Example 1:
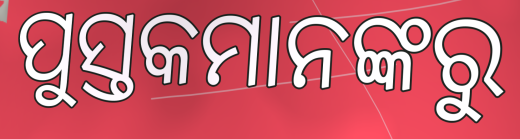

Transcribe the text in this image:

ପୁସ୍ତକମାନଙ୍କରୁ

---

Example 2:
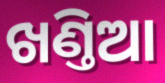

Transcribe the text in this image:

ଖଣ୍ତିଆ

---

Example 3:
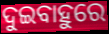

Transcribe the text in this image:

ଦୁଇବାହୁରେ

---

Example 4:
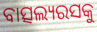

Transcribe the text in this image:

ବାତ୍ସଲ୍ୟରସକୁ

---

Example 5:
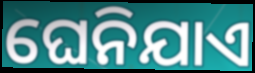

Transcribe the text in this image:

ଘେନିଯାଏ